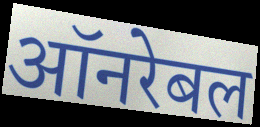
ऑनरेबल